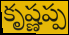
కృష్ణప్ప